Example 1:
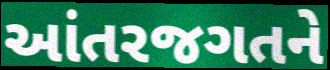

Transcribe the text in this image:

આંતરજગતને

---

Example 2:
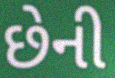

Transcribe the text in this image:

છેની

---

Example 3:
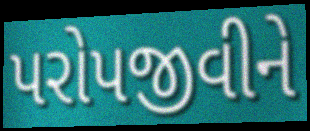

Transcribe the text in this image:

પરોપજીવીને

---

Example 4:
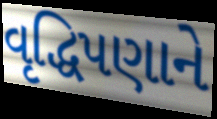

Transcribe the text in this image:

વૃદ્ધિપણાને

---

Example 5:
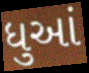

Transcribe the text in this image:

ધુઆં